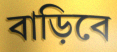
বাড়িবে